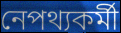
নেপথ্যকর্মী